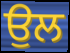
ਉਲ